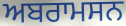
ਅਬਰਾਮਸਨ